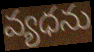
వ్యధను